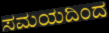
ಸಮಯದಿಂದ